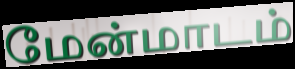
மேன்மாடம்